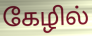
கேழில்